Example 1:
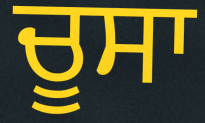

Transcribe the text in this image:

ਚੂਸਾ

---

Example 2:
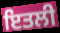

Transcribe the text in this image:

ਇਤਲੀ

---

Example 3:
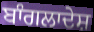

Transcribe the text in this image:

ਬਾੰਗਲਾਦੇਸ਼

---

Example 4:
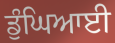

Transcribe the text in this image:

ਡੁੰਘਿਆਈ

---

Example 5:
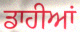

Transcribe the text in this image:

ਡਾਹੀਆਂ